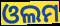
ଓଲମ